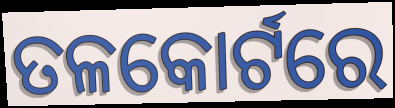
ତଳକୋର୍ଟରେ